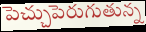
పెచ్చుపెరుగుతున్న